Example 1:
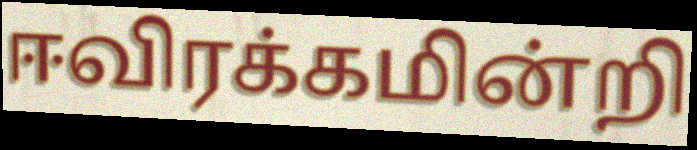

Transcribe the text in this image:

ஈவிரக்கமின்றி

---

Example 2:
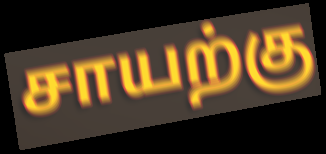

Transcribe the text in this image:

சாயற்கு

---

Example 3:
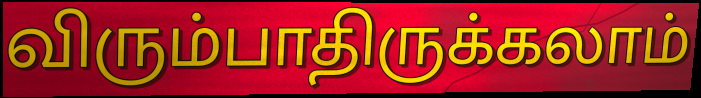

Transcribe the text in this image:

விரும்பாதிருக்கலாம்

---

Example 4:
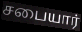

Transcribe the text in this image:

சபையார்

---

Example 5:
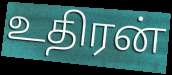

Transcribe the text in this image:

உதிரன்